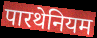
पारथेनियम